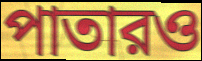
পাতারও